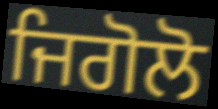
ਜਿਗੋਲੋ